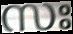
സഃ